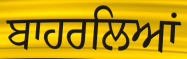
ਬਾਹਰਲਿਆਂ